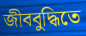
জীববুদ্ধিতে